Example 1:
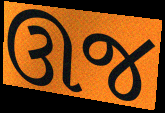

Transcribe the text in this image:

ઊજ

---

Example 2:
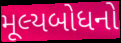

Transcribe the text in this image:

મૂલ્યબોધનો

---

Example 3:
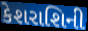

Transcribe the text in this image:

કેશરાશિની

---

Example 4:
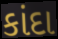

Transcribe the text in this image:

કાંદા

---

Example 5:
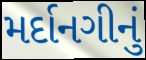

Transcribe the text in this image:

મર્દાનગીનું